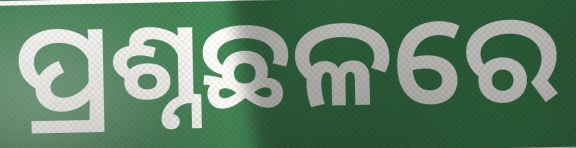
ପ୍ରଶ୍ନଛଳରେ